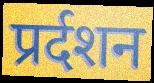
प्रर्दशन